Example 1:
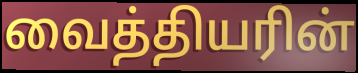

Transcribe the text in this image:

வைத்தியரின்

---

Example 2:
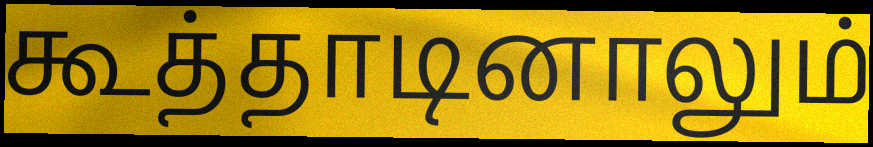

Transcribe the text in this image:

கூத்தாடினாலும்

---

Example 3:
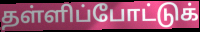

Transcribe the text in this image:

தள்ளிப்போட்டுக்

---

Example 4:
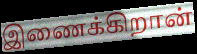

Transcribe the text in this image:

இணைக்கிறான்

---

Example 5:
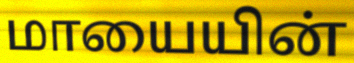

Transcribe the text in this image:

மாயையின்